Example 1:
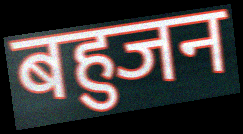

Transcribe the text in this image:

बहुजन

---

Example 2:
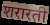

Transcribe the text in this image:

शरारती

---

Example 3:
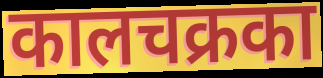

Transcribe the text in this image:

कालचक्रका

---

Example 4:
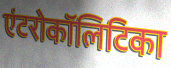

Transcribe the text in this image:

एंटरोकॉलिटिका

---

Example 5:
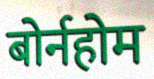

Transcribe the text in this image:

बोर्नहोम